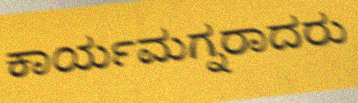
ಕಾರ್ಯಮಗ್ನರಾದರು